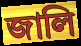
জালি